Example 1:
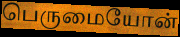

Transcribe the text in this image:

பெருமையோன்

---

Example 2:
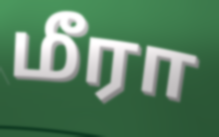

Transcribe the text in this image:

மீரா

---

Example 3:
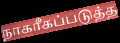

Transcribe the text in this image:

நாகரீகப்படுத்த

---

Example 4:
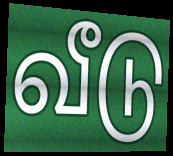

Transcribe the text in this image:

வீடு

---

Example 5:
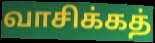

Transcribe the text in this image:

வாசிக்கத்